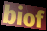
biof